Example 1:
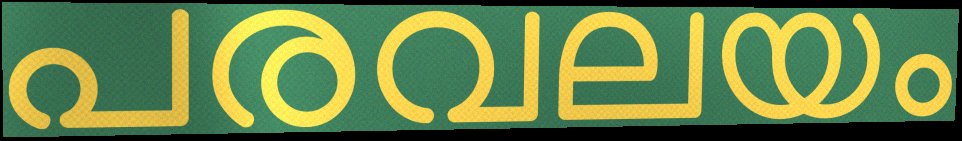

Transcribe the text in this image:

പരവലയം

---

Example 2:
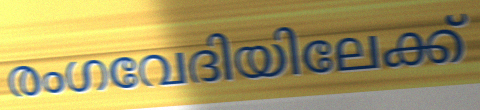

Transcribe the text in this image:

രംഗവേദിയിലേക്ക്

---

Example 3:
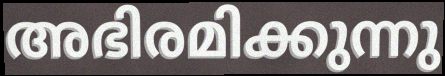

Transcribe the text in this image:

അഭിരമിക്കുന്നു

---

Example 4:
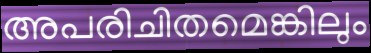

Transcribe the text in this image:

അപരിചിതമെങ്കിലും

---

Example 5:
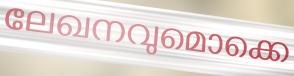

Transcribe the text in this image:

ലേഖനവുമൊക്കെ